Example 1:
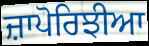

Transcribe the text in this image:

ਜ਼ਾਪੋਰਿਝੀਆ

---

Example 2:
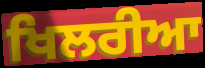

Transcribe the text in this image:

ਖਿਲਰੀਆ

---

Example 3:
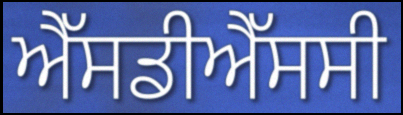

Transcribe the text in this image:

ਐੱਸਡੀਐੱਸਸੀ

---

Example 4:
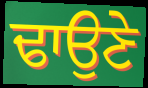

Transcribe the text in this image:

ਢਾਉਣੇ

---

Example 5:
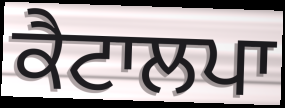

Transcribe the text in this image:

ਕੈਟਾਲਪਾ